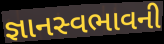
જ્ઞાનસ્વભાવની